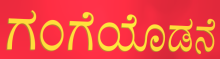
ಗಂಗೆಯೊಡನೆ